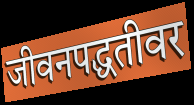
जीवनपद्धतीवर